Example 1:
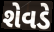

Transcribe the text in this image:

શેવડે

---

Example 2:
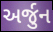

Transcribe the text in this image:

અર્જુન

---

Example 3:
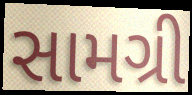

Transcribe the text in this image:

સામગ્રી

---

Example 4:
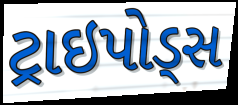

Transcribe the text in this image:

ટ્રાઇપોડ્સ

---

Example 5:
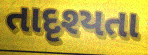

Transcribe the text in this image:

તાદૃશ્યતા